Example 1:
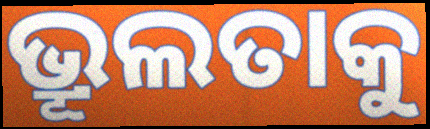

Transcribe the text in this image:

ଭ୍ରୂଲତାକୁ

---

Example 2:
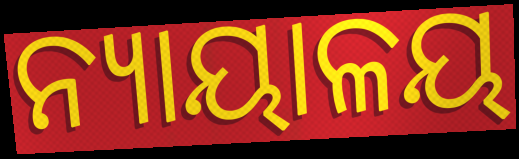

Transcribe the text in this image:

ନ୍ଯାୟାଳୟ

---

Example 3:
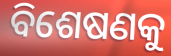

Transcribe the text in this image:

ବିଶେଷଣକୁ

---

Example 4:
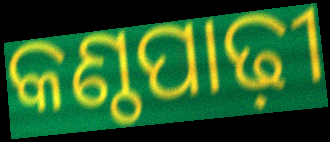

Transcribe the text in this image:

କଣ୍ଠପାଢ଼ୀ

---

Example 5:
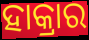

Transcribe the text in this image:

ହାକ୍ରାର